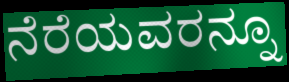
ನೆರೆಯವರನ್ನೂ